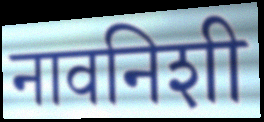
नावनिशी